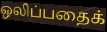
ஒலிப்பதைக்